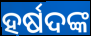
ହର୍ଷଦଙ୍କ